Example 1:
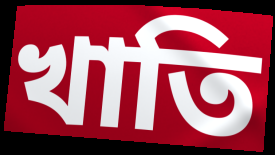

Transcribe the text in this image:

খাতি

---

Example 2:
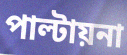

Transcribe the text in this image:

পাল্টায়না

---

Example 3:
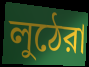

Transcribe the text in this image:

লুঠেরা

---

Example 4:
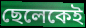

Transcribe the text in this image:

ছেলেকেই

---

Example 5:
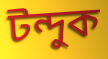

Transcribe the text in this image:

টন্দুক